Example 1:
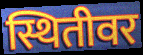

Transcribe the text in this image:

स्थितीवर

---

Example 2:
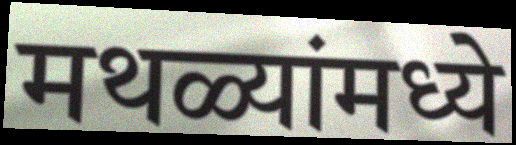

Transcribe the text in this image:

मथळ्यांमध्ये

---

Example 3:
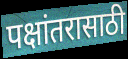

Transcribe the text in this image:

पक्षांतरासाठी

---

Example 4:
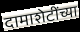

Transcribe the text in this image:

दामाशेटींच्या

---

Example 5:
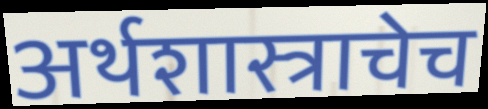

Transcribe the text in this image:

अर्थशास्त्राचेच